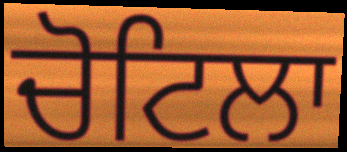
ਚੋਟਿਲਾ